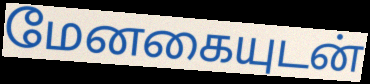
மேனகையுடன்